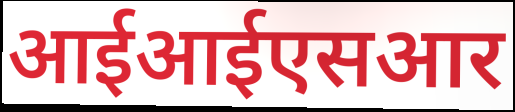
आईआईएसआर